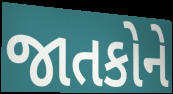
જાતકોને